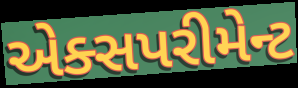
એક્સપરીમેન્ટ